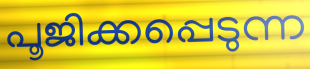
പൂജിക്കപ്പെടുന്ന